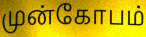
முன்கோபம்